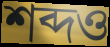
শব্দও